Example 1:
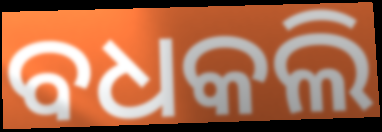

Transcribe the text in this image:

ବଧକଲି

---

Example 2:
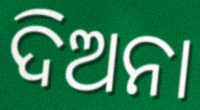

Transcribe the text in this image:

ଦିଅନା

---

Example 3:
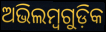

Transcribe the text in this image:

ଅଭିଲମ୍ବଗୁଡ଼ିକ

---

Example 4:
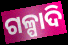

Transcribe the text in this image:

ଗଳ୍ପାଦି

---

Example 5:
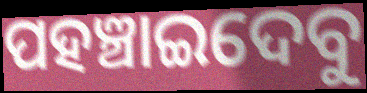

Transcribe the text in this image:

ପହଞ୍ଚାଇଦେବୁ